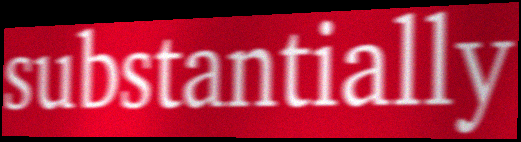
substantially